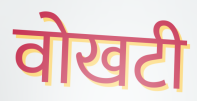
वोखटी